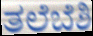
ತಲೆಬೆಶಿ